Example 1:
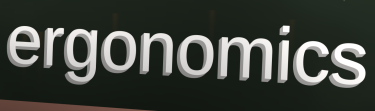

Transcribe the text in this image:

ergonomics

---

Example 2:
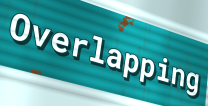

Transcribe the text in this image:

Overlapping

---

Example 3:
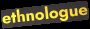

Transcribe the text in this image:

ethnologue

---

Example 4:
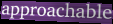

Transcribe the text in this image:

approachable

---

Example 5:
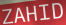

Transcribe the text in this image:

ZAHID